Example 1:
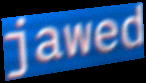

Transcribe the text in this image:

jawed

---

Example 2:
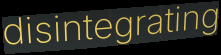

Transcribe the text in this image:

disintegrating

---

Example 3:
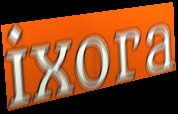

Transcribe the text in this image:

ixora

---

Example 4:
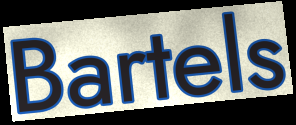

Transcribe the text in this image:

Bartels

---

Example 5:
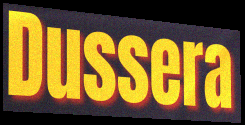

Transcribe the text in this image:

Dussera